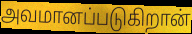
அவமானப்படுகிறான்